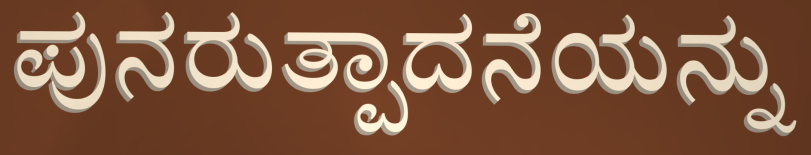
ಪುನರುತ್ಪಾದನೆಯನ್ನು